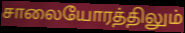
சாலையோரத்திலும்